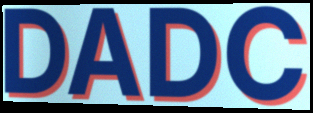
DADC